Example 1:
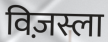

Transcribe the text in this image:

विज़स्ला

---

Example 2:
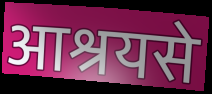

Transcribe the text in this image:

आश्रयसे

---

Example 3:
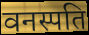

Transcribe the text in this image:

वनस्पति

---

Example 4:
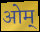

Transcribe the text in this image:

ओम्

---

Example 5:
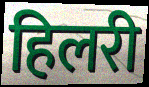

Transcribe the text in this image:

हिलरी